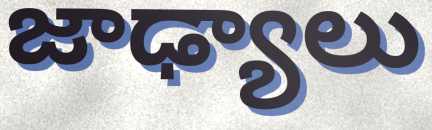
జాఢ్యాలు